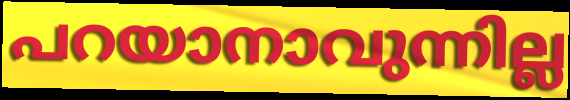
പറയാനാവുന്നില്ല